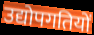
उद्योपगतियों